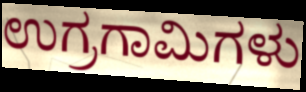
ಉಗ್ರಗಾಮಿಗಳು